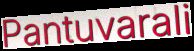
Pantuvarali